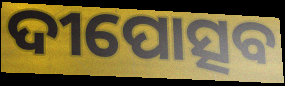
ଦୀପୋତ୍ସବ